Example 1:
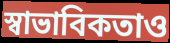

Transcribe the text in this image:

স্বাভাবিকতাও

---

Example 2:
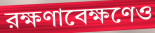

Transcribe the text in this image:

রক্ষণাবেক্ষণেও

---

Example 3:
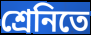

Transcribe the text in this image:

শ্রেনিতে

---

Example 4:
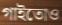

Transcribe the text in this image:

গাইতোও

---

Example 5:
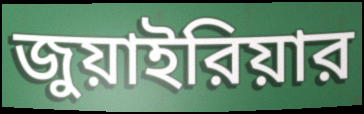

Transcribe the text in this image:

জুয়াইরিয়ার